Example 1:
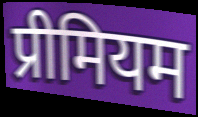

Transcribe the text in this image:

प्रीमियम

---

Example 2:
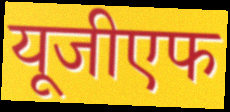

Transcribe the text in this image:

यूजीएफ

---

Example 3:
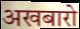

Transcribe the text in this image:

अखबारो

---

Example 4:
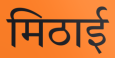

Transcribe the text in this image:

मिठाई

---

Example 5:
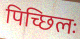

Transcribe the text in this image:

पिच्छिलः